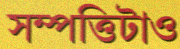
সম্পত্তিটাও